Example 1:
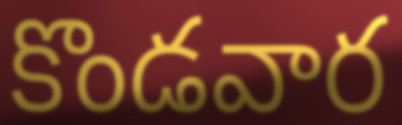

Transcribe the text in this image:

కొండవార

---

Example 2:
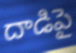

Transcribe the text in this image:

దాడిపై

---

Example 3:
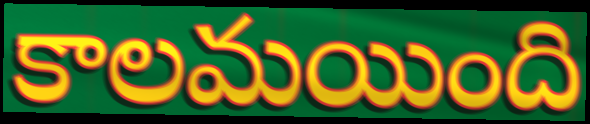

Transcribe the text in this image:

కాలమయింది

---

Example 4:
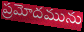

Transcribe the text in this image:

ప్రమోదమును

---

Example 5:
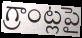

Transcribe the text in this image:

గ్రాంట్లపై